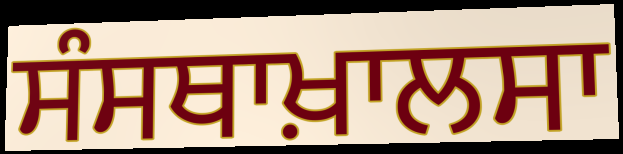
ਸੰਸਥਾਖ਼ਾਲਸਾ